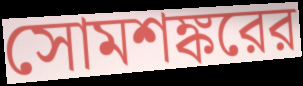
সোমশঙ্করের